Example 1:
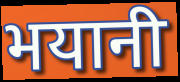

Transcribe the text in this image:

भयानी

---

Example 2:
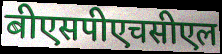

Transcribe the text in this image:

बीएसपीएचसीएल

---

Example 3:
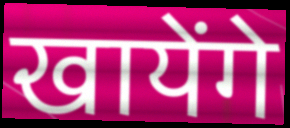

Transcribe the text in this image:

खायेंगे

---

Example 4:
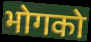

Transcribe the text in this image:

भोगको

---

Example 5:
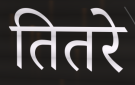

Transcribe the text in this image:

तितरे